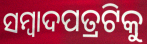
ସମ୍ବାଦପତ୍ରଟିକୁ